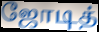
ஜோடித்